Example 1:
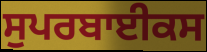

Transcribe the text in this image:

ਸੁਪਰਬਾਈਕਸ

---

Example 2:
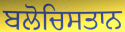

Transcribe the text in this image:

ਬਲੋਚਿਸਤਾਨ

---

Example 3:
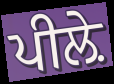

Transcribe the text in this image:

ਪੀਲ਼ੇ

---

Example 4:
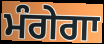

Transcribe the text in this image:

ਮੰਗੇਗਾ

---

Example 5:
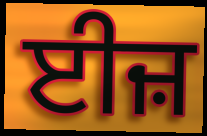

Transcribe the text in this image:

ਈਜ਼